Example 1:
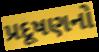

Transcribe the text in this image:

પ્રદૂષણનો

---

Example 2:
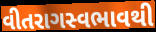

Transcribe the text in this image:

વીતરાગસ્વભાવથી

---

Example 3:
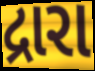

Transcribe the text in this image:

દ્રારા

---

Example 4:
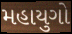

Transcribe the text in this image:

મહાયુગો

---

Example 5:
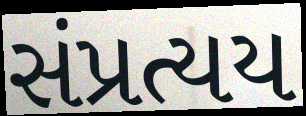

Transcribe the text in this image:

સંપ્રત્યય